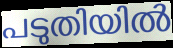
പടുതിയിൽ